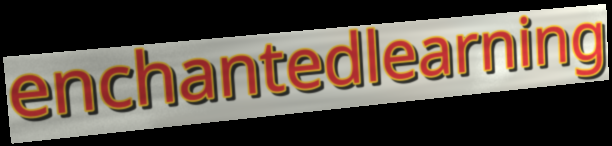
enchantedlearning